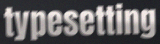
typesetting